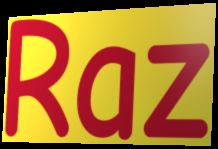
Raz